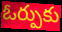
ఓర్పుకు